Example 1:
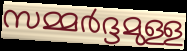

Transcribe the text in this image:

സമ്മർദ്ദമുള്ള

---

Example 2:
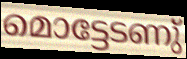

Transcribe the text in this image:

മൊട്ടേടണു്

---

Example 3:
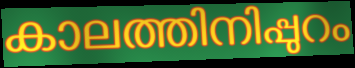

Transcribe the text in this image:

കാലത്തിനിപ്പുറം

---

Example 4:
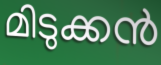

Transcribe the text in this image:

മിടുക്കൻ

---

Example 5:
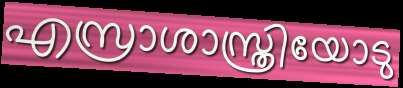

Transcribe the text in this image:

എസ്രാശാസ്ത്രിയോടു